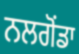
ਨਲਗੋਂਡਾ